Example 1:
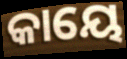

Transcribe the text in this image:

କାୟେ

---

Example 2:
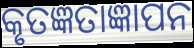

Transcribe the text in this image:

କୃତଜ୍ଞତାଜ୍ଞାପନ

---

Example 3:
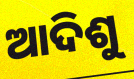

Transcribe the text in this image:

ଆଦିଶୁ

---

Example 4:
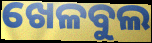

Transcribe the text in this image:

ଖେଳବୁଲ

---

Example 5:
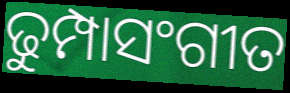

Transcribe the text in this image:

ଢୁମ୍ପାସଂଗୀତ